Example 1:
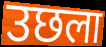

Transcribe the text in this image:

उछला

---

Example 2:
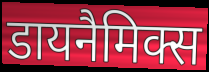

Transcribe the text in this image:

डायनैमिक्स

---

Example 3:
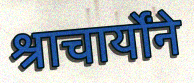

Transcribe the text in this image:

श्राचार्योंने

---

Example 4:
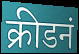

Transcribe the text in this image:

क्रीडनं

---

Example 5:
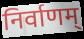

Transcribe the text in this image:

निर्वाणम्